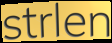
strlen